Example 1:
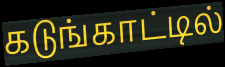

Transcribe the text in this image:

கடுங்காட்டில்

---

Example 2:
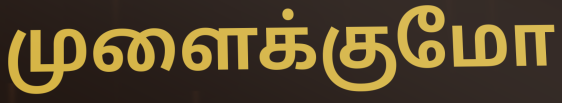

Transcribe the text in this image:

முளைக்குமோ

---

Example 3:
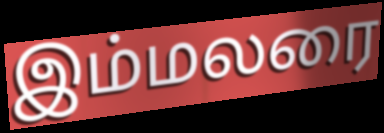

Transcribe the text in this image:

இம்மலரை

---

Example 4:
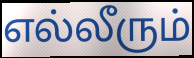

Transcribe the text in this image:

எல்லீரும்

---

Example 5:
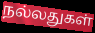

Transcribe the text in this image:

நல்லதுகள்